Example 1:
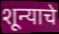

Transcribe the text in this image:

शून्याचे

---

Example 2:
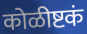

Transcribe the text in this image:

कोळीष्टकं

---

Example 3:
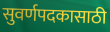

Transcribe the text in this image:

सुवर्णपदकासाठी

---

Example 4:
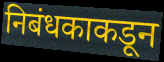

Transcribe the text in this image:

निबंधकाकडून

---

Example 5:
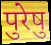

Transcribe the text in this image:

पुरेषु